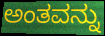
ಅಂತವನ್ನು